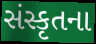
સંસ્કૃતના